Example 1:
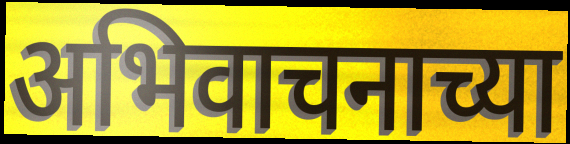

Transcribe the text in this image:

अभिवाचनाच्या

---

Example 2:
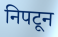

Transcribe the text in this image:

निपटून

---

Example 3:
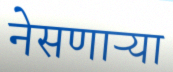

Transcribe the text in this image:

नेसणाऱ्या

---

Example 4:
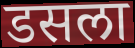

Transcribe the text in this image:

डसला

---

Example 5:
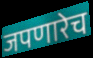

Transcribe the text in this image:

जपणारेच